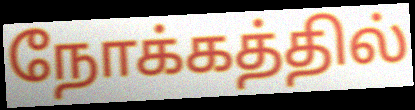
நோக்கத்தில்